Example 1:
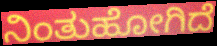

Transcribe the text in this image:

ನಿಂತುಹೋಗಿದೆ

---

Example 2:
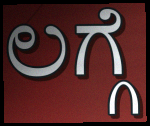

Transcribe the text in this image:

ಲಗ್ಗೆ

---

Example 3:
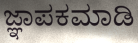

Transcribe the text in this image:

ಜ್ಞಾಪಕಮಾಡಿ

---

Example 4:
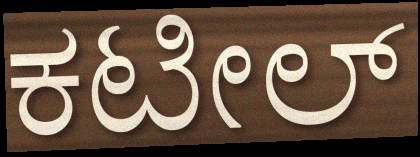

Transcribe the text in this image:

ಕಟೀಲ್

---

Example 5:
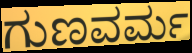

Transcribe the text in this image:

ಗುಣವರ್ಮ